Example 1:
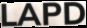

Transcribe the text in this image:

LAPD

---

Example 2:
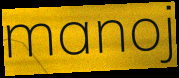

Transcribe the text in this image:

manoj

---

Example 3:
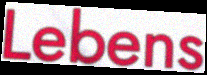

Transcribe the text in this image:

Lebens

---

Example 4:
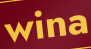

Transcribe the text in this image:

wina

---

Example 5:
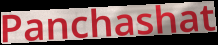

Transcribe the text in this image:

Panchashat